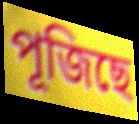
পূজিছে